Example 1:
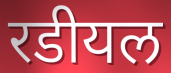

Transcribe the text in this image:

रडीयल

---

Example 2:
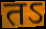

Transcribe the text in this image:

तऽ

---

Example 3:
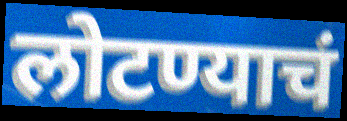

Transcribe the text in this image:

लोटण्याचं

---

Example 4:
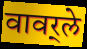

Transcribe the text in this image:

वावर्ले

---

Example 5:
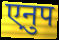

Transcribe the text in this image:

एनुप